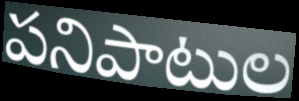
పనిపాటుల